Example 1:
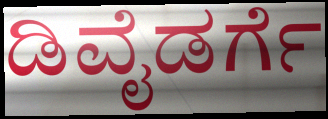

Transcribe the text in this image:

ಡಿವೈಡರ್ಗೆ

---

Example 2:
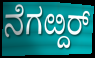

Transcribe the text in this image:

ನೆಗೞ್ದರ್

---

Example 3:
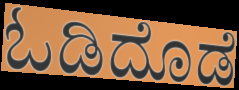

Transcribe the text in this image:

ಓಡಿದೊಡೆ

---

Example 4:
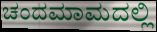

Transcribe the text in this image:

ಚಂದಮಾಮದಲ್ಲಿ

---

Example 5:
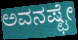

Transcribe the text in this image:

ಅವನಷ್ಟೇ